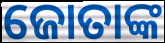
ଜୋତାଙ୍କ